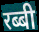
रब्बी